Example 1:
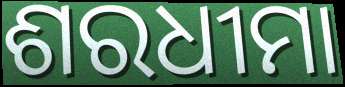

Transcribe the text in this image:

ଶରଧୀମା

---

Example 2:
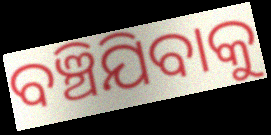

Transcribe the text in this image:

ବଞ୍ଚିଯିବାକୁ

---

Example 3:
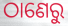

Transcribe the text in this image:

ଠାଣେରୁ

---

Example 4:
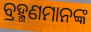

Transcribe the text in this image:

ବ୍ରହ୍ମଣମାନଙ୍କ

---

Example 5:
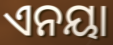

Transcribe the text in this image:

ଏନୟା